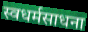
स्वधर्मसाधना